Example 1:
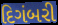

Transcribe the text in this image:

દિગંબરી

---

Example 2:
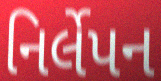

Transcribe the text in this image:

નિર્લેપન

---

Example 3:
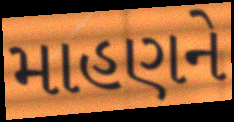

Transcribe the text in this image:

માહણને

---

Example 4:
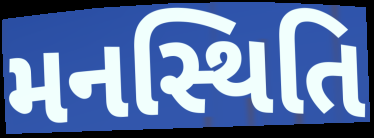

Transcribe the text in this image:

મનસ્થિતિ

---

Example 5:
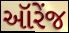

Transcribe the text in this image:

ઑરેંજ